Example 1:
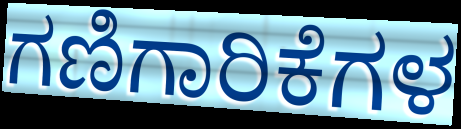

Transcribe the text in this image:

ಗಣಿಗಾರಿಕೆಗಳ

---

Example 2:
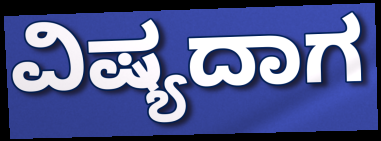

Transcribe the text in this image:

ವಿಷ್ಯದಾಗ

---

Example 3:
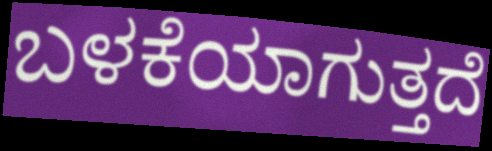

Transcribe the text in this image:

ಬಳಕೆಯಾಗುತ್ತದೆ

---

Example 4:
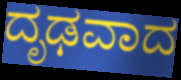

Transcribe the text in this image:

ದೃಢವಾದ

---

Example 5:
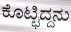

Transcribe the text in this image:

ಕೊಟ್ಟಿದ್ದನು